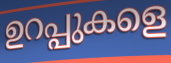
ഉറപ്പുകളെ